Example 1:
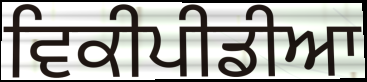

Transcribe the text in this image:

ਵਿਕੀਪੀਡੀਆ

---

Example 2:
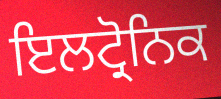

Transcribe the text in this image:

ਇਲਟ੍ਰੋਨਿਕ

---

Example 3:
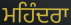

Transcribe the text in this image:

ਮਹਿੰਦਰਾ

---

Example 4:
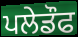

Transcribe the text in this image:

ਪਲੇਡੌਫ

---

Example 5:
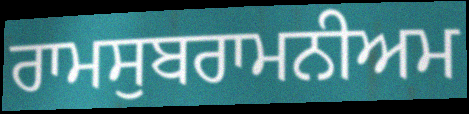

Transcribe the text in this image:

ਰਾਮਸੁਬਰਾਮਨੀਅਮ